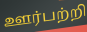
ஊர்பற்றி